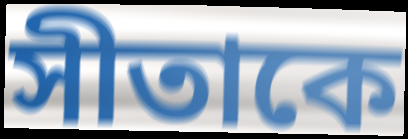
সীতাকে